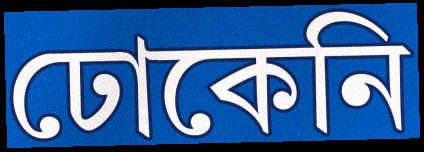
ঢোকেনি